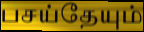
பசய்தேயும்